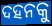
ଦହନକୁ